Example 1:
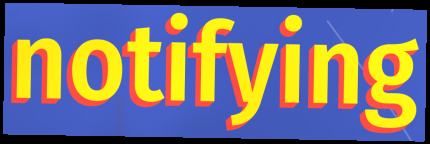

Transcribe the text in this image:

notifying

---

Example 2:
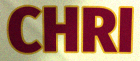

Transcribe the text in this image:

CHRI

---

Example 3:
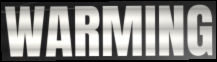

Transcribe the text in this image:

WARMING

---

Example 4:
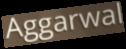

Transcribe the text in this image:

Aggarwal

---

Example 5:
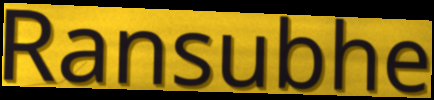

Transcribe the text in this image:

Ransubhe